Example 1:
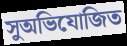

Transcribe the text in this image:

সুঅভিযোজিত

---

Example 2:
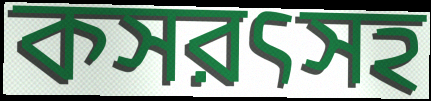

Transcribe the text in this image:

কসরৎসহ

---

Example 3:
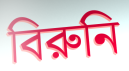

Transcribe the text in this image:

বিরুনি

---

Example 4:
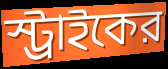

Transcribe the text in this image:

স্ট্রাইকের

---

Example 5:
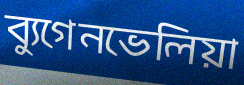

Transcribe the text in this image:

ব্যুগেনভেলিয়া